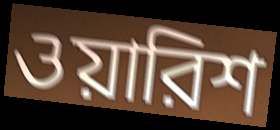
ওয়ারিশ